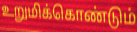
உறுமிக்கொண்டும்